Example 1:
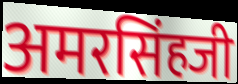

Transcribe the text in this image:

अमरसिंहजी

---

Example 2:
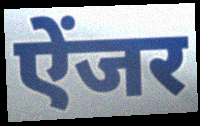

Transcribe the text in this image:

ऐंजर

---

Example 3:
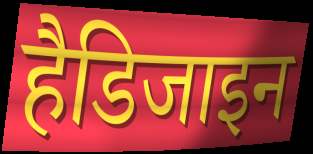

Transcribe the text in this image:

हैडिजाइन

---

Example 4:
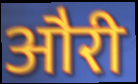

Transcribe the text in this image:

औरी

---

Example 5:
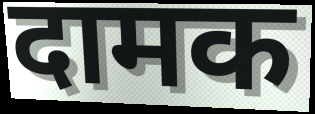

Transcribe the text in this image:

दामक